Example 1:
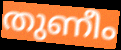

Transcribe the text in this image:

തുണീം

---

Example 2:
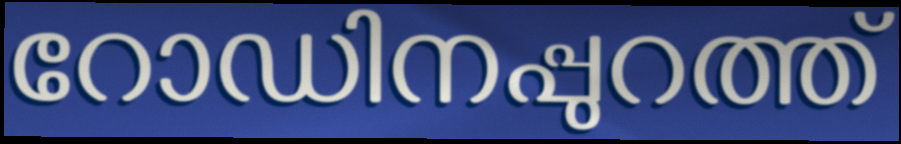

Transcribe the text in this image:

റോഡിനപ്പുറത്ത്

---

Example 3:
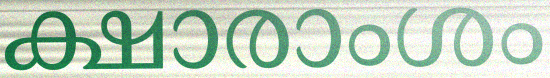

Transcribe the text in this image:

ക്ഷാരാംശം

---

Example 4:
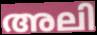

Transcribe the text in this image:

അലി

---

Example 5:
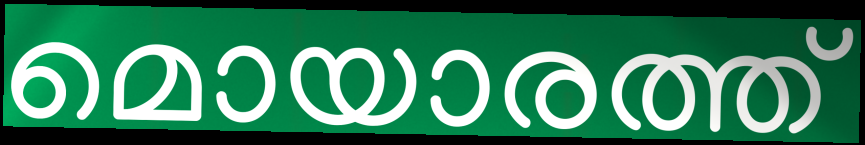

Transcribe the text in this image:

മൊയാരത്ത്